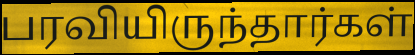
பரவியிருந்தார்கள்